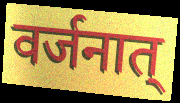
वर्जनात्